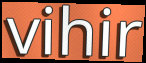
vihir